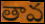
తావ